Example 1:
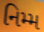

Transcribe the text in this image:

નિમ્મ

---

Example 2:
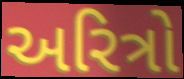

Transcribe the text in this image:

અરિત્રો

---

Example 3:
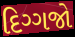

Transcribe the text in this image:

દિગ્ગજો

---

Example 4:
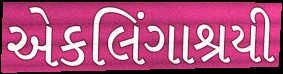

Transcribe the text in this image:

એકલિંગાશ્રયી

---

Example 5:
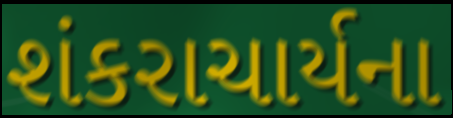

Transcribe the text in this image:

શંકરાચાર્યના